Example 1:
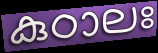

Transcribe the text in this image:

കുഠാലഃ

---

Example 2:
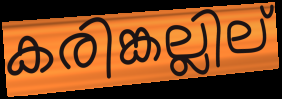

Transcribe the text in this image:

കരിങ്കല്ലില്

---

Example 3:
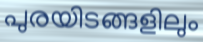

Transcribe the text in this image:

പുരയിടങ്ങളിലും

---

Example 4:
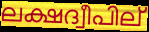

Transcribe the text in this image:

ലക്ഷദ്വീപില്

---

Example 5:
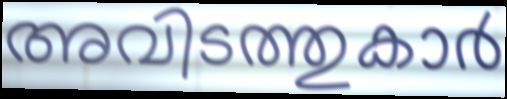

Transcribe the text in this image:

അവിടത്തുകാർ